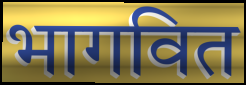
भागवित